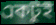
একটুই